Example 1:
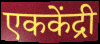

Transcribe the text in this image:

एककेंद्री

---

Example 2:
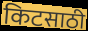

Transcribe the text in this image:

किटसाठी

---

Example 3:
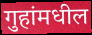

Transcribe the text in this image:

गुहांमधील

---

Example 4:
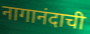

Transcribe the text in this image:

नागानंदाची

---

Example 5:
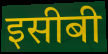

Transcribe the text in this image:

इसीबी